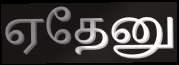
ஏதேனு